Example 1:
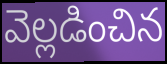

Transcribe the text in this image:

వెల్లడించిన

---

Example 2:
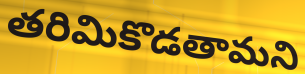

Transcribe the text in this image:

తరిమికొడతామని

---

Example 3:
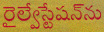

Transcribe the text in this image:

రైల్వేస్టేషన్‌ను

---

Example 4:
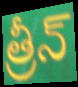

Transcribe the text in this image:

త్రీన్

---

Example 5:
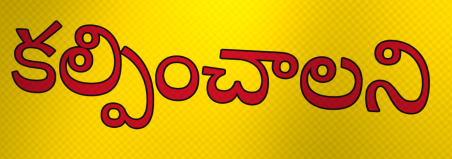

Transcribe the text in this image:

కల్పించాలని